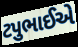
ટપુભાઈએ